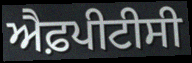
ਐਫ਼ਪੀਟੀਸੀ